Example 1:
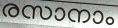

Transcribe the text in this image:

രസാനാം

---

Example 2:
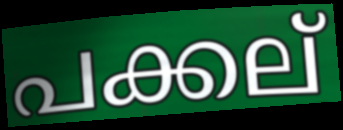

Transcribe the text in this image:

പക്കല്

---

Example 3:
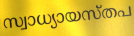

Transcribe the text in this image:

സ്വാധ്യായസ്തപ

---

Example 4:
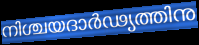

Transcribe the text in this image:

നിശ്ചയദാർഢ്യത്തിനു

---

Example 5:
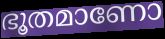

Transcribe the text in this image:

ഭൂതമാണോ